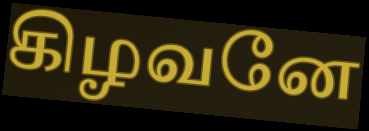
கிழவனே